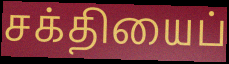
சக்தியைப்